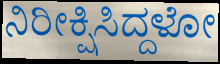
ನಿರೀಕ್ಷಿಸಿದ್ದಳೋ